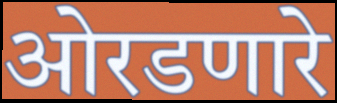
ओरडणारे